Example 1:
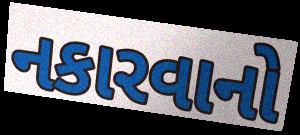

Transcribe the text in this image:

નકારવાનો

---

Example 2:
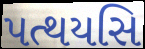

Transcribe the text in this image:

પત્થયસિ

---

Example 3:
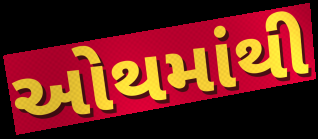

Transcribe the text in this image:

ઓથમાંથી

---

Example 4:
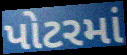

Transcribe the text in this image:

પોટરમાં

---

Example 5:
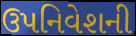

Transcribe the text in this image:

ઉપનિવેશની